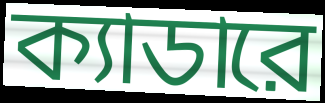
ক্যাডারে